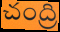
చంద్రి